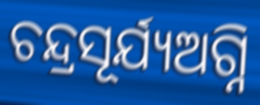
ଚନ୍ଦ୍ରସୂର୍ଯ୍ୟଅଗ୍ନି